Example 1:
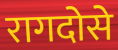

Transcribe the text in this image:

रागदोसे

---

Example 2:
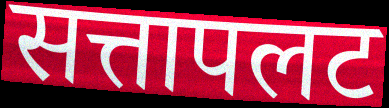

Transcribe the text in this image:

सत्तापलट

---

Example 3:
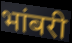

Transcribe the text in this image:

भांबरी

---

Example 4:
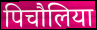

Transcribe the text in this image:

पिचौलिया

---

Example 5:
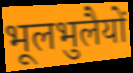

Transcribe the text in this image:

भूलभुलैयों